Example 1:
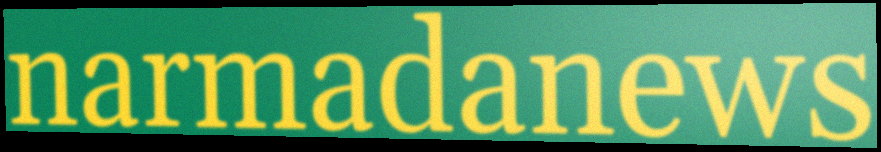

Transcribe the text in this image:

narmadanews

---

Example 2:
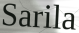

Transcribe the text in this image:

Sarila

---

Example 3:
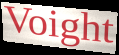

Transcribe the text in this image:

Voight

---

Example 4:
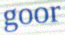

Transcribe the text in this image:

goor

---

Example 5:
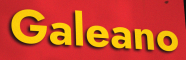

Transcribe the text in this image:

Galeano